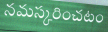
నమస్కరించటం